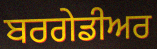
ਬਰਗੇਡੀਅਰ